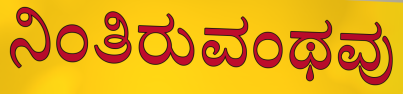
ನಿಂತಿರುವಂಥವು